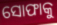
ସୋଫାକୁ